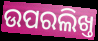
ଉପରଲିଖ୍ତ